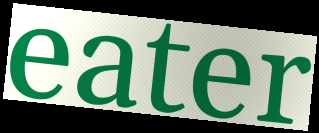
eater